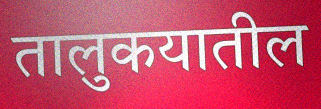
तालुकयातील